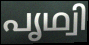
പൃഥ്വി